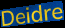
Deidre